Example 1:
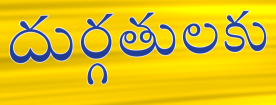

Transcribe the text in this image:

దుర్గతులకు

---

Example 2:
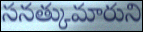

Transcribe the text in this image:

సనత్కుమారుని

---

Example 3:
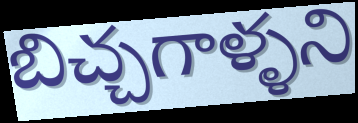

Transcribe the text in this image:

బిచ్చగాళ్ళని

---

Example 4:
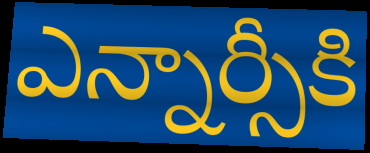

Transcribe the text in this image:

ఎన్నార్సీకి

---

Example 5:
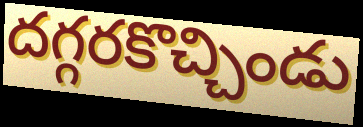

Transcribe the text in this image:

దగ్గరకొచ్చిండు